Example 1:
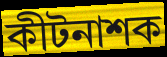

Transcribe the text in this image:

কীটনাশক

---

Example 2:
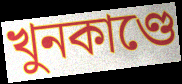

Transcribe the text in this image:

খুনকাণ্ডে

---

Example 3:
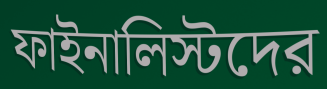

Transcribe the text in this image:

ফাইনালিস্টদের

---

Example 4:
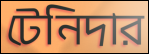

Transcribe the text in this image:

টেনিদার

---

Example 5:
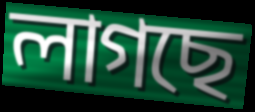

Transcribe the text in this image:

লাগছে